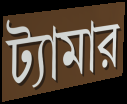
ট্যামার